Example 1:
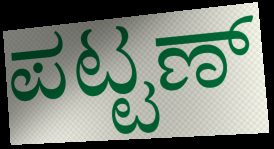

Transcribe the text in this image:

ಪಟ್ಟಣ್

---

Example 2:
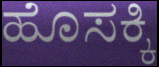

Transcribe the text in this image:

ಹೊಸಕ್ಕಿ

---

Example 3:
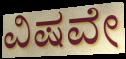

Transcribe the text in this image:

ವಿಷವೇ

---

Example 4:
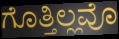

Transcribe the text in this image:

ಗೊತ್ತಿಲ್ಲವೊ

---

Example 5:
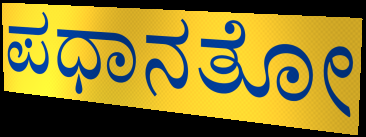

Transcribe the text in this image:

ಪಧಾನತೋ